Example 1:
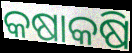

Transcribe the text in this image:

କଷାକଷି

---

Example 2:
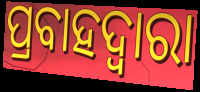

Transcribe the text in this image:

ପ୍ରବାହଦ୍ୱାରା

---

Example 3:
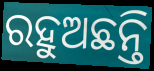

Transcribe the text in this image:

ରହୁଅଛନ୍ତି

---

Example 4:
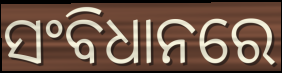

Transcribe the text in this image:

ସଂବିଧାନରେ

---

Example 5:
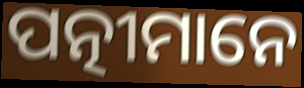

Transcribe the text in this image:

ପତ୍ନୀମାନେ